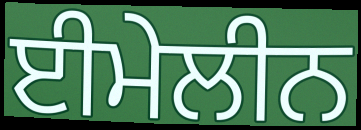
ਈਮੇਲੀਨ